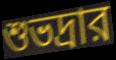
শুভদ্রার